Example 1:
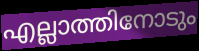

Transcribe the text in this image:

എല്ലാത്തിനോടും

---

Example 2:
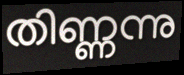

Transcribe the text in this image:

തിണ്ണന്നു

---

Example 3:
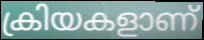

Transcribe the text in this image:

ക്രിയകളാണ്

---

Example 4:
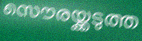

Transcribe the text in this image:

സൌരയ്ക്കടുത്ത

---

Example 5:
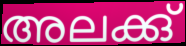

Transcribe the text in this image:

അലക്കു്